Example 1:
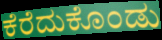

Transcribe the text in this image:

ಕೆರೆದುಕೊಂಡು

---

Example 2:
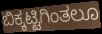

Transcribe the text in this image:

ಬಿಕ್ಕಟ್ಟಿಗಿಂತಲೂ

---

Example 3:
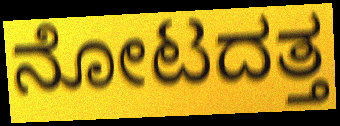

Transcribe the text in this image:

ನೋಟದತ್ತ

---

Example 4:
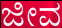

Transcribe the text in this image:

ಜೀವ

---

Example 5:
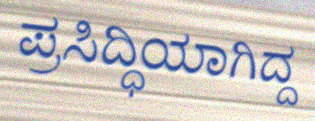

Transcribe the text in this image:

ಪ್ರಸಿದ್ಧಿಯಾಗಿದ್ದ